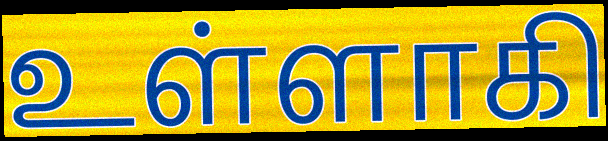
உள்ளாகி